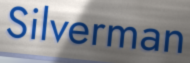
Silverman